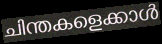
ചിന്തകളെക്കാൾ